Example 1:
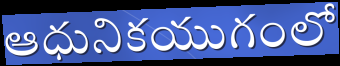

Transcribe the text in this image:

ఆధునికయుగంలో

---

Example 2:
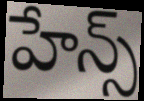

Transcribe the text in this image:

హేన్స్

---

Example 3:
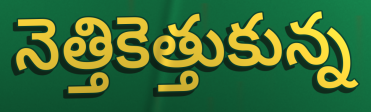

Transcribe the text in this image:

నెత్తికెత్తుకున్న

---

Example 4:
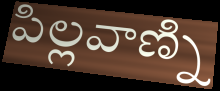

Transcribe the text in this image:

పిల్లవాణ్ని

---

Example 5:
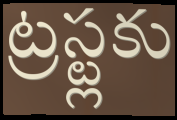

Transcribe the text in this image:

ట్రస్ట్లకు